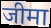
जीमा